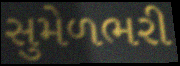
સુમેળભરી